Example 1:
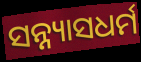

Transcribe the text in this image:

ସନ୍ନ୍ୟାସଧର୍ମ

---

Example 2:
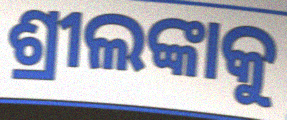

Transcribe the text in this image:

ଶ୍ରୀଲଙ୍କାକୁ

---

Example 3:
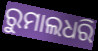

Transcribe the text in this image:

ରୁମାଲଧରି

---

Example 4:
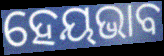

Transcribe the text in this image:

ହେୟଭାବ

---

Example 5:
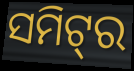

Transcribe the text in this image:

ସମିଟ୍‌ର